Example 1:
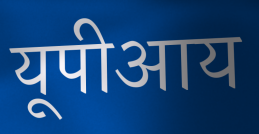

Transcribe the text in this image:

यूपीआय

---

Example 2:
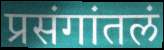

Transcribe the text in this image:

प्रसंगांतलं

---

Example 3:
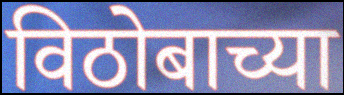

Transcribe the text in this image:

विठोबाच्या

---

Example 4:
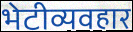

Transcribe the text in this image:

भेटीव्यवहार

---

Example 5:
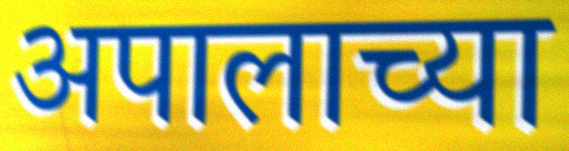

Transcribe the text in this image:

अपालाच्या